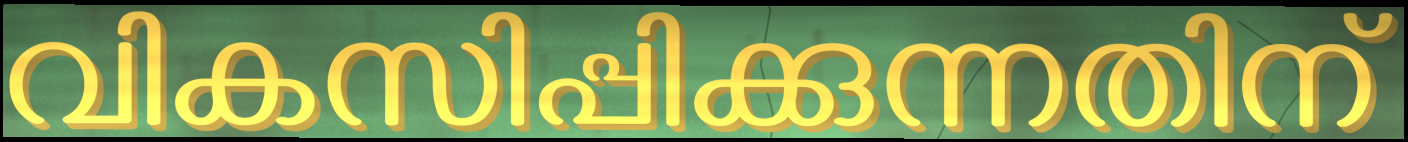
വികസിപ്പിക്കുന്നതിന്